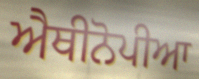
ਐਥੀਨੋਪੀਆ